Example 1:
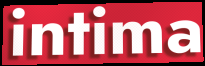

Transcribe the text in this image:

intima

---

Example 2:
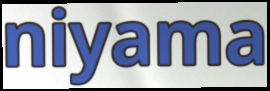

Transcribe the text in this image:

niyama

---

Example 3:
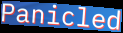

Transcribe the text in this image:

Panicled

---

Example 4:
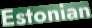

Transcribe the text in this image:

Estonian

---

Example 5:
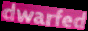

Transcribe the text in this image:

dwarfed